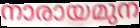
നാരായമുന